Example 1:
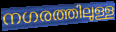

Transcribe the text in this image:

നഗരത്തിലുള്ള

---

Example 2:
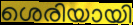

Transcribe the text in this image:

ശെരിയായി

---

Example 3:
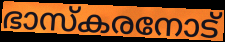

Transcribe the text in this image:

ഭാസ്കരനോട്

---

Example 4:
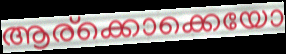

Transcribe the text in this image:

ആര്ക്കൊക്കെയോ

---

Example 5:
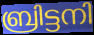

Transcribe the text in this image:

ബ്രിട്ടനി